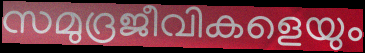
സമുദ്രജീവികളെയും